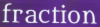
fraction